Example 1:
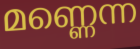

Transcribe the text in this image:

മണ്ണെന്ന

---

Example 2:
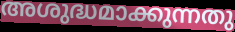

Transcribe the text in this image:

അശുദ്ധമാക്കുന്നതു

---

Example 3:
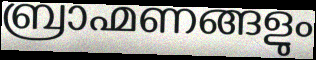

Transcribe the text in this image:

ബ്രാഹ്മണങ്ങളും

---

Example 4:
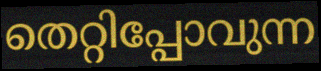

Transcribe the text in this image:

തെറ്റിപ്പോവുന്ന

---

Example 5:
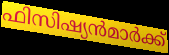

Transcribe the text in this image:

ഫിസിഷ്യൻമാർക്ക്